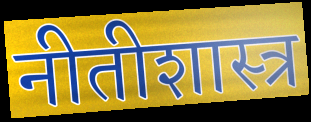
नीतीशास्त्र